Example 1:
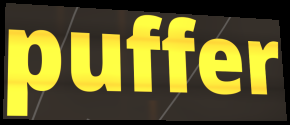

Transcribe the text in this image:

puffer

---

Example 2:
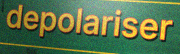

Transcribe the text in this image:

depolariser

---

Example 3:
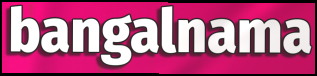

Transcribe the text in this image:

bangalnama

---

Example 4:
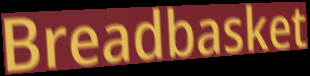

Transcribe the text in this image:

Breadbasket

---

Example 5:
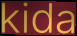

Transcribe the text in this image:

kida